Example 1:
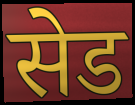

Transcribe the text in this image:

सेड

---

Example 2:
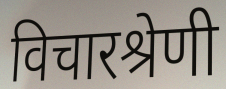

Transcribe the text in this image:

विचारश्रेणी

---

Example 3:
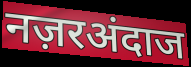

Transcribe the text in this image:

नज़रअंदाज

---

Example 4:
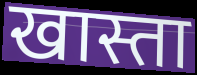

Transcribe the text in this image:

खास्ता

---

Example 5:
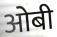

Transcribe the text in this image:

ओबी